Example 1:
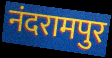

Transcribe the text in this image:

नंदरामपुर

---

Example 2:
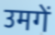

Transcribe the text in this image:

उमगें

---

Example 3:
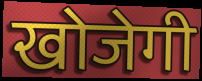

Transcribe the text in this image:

खोजेगी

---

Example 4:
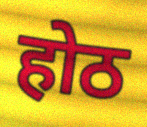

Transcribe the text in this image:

होठ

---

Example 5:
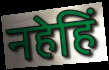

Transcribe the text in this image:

नहेहिं